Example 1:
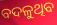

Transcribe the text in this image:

ବଦଳୁଥିବ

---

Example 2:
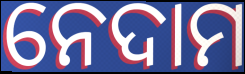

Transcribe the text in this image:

ନେଦାମ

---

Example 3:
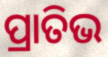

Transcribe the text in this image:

ପ୍ରାତିଭ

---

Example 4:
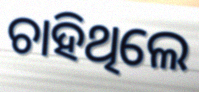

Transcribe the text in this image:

ଚାହିଥିଲେ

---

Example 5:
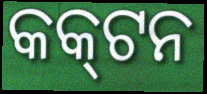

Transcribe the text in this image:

କକ୍‌ଟନ